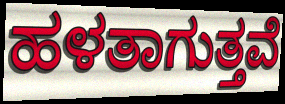
ಹಳತಾಗುತ್ತವೆ